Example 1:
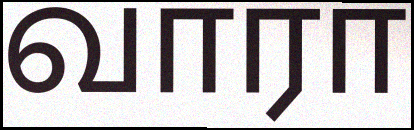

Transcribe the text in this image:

வாரா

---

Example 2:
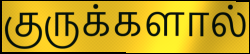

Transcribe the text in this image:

குருக்களால்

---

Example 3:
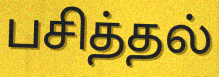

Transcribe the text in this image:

பசித்தல்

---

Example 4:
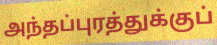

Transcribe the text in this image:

அந்தப்புரத்துக்குப்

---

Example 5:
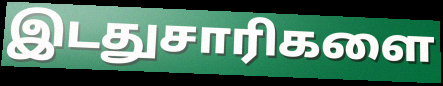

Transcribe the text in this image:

இடதுசாரிகளை